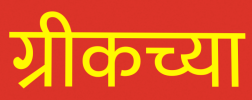
ग्रीकच्या